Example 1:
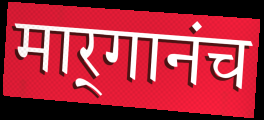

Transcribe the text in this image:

मार्गानंच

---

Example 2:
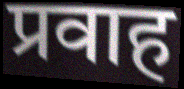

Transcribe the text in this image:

प्रवाह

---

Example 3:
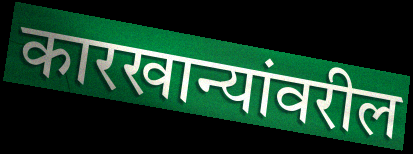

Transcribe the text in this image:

कारखान्यांवरील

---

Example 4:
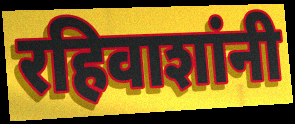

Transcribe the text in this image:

रहिवाशांनी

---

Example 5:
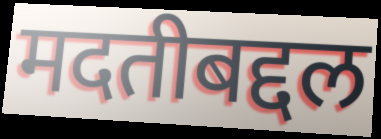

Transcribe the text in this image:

मदतीबद्दल